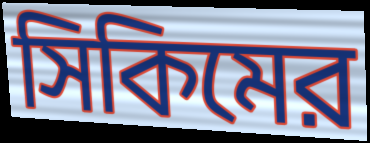
সিকিমের